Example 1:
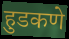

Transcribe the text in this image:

हुडकणे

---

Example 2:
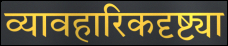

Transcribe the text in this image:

व्यावहारिकदृष्ट्या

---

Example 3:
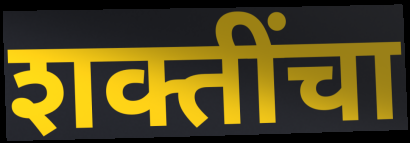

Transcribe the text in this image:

शक्तींचा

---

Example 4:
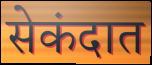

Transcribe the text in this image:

सेकंदात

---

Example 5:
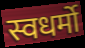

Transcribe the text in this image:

स्वधर्मो